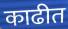
काढीत